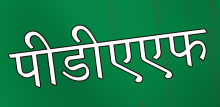
पीडीएएफ